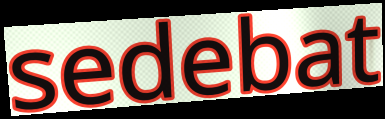
sedebat